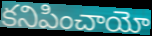
కనిపించాయో